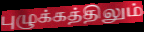
புழுக்கத்திலும்